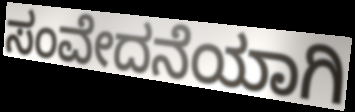
ಸಂವೇದನೆಯಾಗಿ